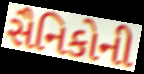
સૈનિકોની